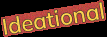
Ideational